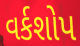
વર્કશોપ